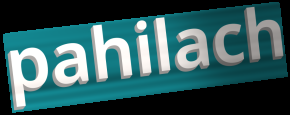
pahilach